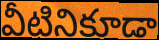
వీటినికూడా